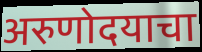
अरुणोदयाचा